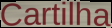
Cartilha